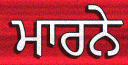
ਮਾਰਨੇ